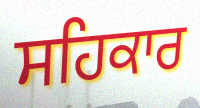
ਸਹਿਕਾਰ